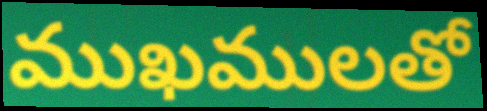
ముఖములతో